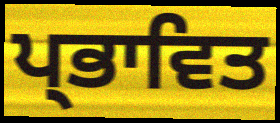
ਪ੍ਭਾਵਿਤ